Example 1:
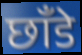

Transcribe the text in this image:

छाँडे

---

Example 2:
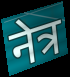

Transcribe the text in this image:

नेत्र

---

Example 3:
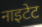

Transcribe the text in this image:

नाइटेट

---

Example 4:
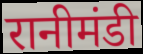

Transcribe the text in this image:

रानीमंडी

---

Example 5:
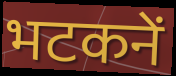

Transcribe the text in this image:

भटकनें